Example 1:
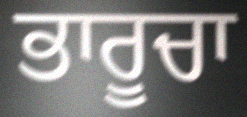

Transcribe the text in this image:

ਭਾਰੂਚਾ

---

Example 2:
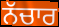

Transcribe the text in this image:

ਨੱਚਾਰ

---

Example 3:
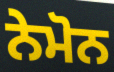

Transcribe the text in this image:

ਨੇਮੋਨ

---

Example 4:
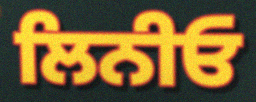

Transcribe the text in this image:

ਲਿਨੀਓ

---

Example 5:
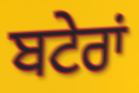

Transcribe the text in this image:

ਬਟੇਰਾਂ